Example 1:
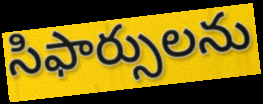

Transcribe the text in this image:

సిఫార్సులను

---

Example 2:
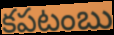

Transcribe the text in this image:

కపటంబు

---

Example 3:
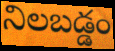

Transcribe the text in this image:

నిలబడ్డం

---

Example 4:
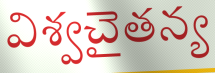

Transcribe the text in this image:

విశ్వచైతన్య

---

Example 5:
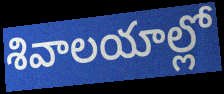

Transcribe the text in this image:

శివాలయాల్లో